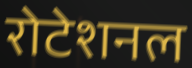
रोटेशनल